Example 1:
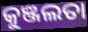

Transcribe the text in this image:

କୁଞ୍ଜଲତା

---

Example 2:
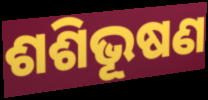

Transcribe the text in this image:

ଶଶିଭୂଷଣ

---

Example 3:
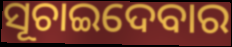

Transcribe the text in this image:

ସୂଚାଇଦେବାର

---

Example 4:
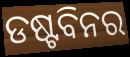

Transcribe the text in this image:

ଡଷ୍ଟବିନର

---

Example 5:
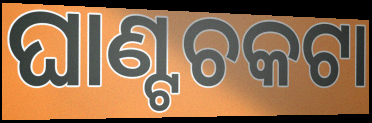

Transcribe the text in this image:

ଘାଣ୍ଟଚକଟା